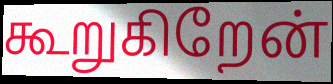
கூறுகிறேன்